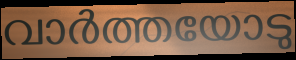
വാർത്തയോടു